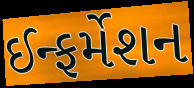
ઈન્ફર્મેશન